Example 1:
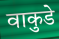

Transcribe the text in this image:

वाकुडे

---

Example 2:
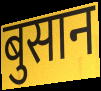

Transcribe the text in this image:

बुसान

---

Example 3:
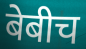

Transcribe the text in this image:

बेबीच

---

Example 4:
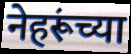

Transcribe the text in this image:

नेहरूंच्या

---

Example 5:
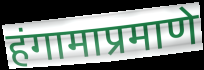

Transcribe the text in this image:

हंगामाप्रमाणे